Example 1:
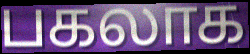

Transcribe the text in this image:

பகலாக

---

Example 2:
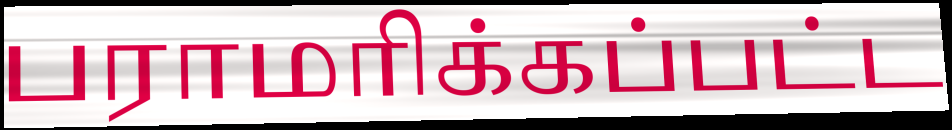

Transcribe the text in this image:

பராமரிக்கப்பட்ட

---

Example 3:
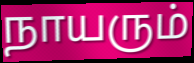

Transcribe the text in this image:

நாயரும்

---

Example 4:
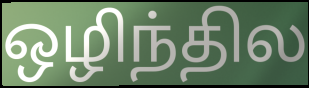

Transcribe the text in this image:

ஒழிந்தில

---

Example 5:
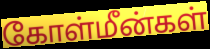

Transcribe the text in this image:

கோள்மீன்கள்